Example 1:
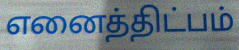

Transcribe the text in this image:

எனைத்திட்பம்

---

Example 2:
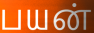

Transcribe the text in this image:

பயன்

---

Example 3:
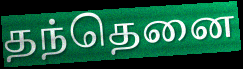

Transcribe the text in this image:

தந்தெனை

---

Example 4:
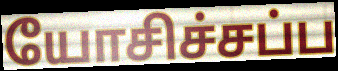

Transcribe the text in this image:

யோசிச்சப்ப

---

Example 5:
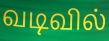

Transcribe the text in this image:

வடிவில்